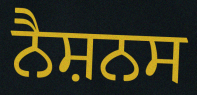
ਨੈਸ਼ਨਸ